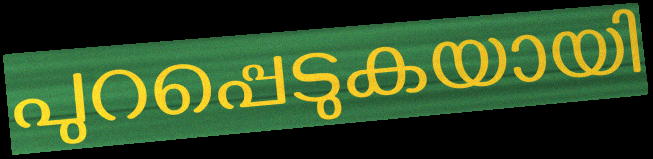
പുറപ്പെടുകയായി